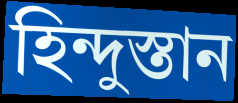
হিন্দুস্তান